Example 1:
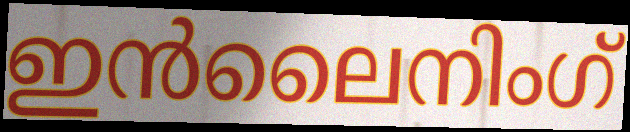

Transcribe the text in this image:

ഇൻലൈനിംഗ്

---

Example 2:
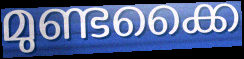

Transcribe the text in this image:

മുണ്ടക്കൈ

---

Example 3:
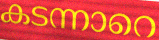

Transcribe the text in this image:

കടന്നാറെ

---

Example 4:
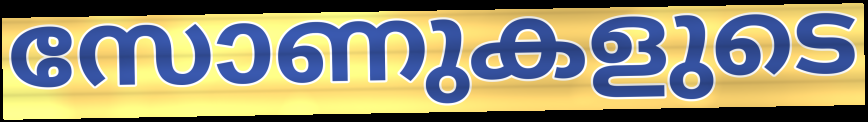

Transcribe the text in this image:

സോണുകളുടെ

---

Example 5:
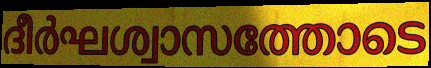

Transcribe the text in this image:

ദീർഘശ്വാസത്തോടെ